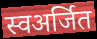
स्वअर्जित